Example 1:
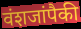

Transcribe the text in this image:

वंशजांपैकी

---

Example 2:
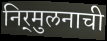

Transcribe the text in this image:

निर्मुलनाची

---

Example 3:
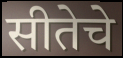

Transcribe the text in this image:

सीतेचे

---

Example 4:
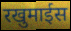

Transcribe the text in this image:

रखुमाईस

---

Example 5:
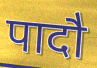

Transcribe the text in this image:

पादौ